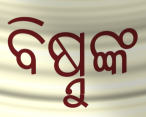
ବିଷ୍ନୁଙ୍କ